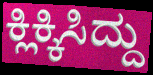
ಕ್ಲಿಕ್ಕಿಸಿದ್ದು